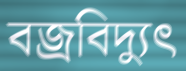
বজ্রবিদ্যুৎ